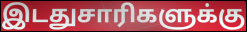
இடதுசாரிகளுக்கு